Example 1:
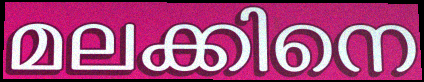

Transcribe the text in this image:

മലക്കിനെ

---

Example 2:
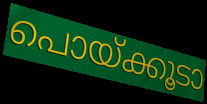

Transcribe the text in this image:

പൊയ്ക്കൂടാ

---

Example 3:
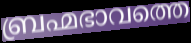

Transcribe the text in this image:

ബ്രഹ്മഭാവത്തെ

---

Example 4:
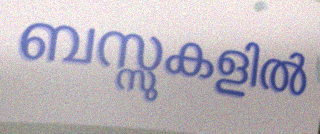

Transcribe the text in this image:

ബസ്സുകളിൽ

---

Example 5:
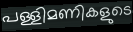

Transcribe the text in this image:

പള്ളിമണികളുടെ